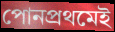
পোনপ্ৰথমেই